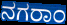
ನಗರಾಂ